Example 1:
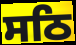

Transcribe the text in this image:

ਸਠਿ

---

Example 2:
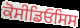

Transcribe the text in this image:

ਕੋਸੀਡਿਓਸਿਸ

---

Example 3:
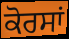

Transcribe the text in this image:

ਕੋਰਸਾਂ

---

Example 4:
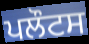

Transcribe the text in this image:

ਪਲੌਟਸ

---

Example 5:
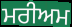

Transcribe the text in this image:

ਮਰੀਅਮ